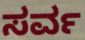
ಸರ್ವ